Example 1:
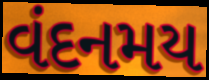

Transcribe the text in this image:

વંદનમય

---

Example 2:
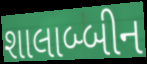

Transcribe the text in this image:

શાલાબ્બીન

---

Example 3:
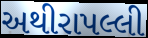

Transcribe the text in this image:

અથીરાપલ્લી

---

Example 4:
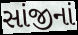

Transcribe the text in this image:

સાંજીનાં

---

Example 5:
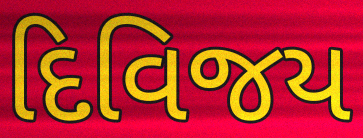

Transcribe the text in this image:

દિવિજય